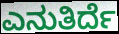
ಎನುತಿರ್ದೆ